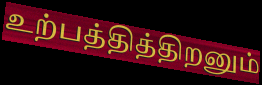
உற்பத்தித்திறனும்